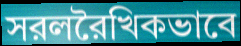
সরলরৈখিকভাবে